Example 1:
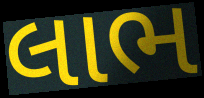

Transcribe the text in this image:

લાભ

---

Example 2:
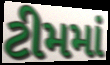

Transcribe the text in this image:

ટીમમાં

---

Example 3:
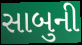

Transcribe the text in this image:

સાબુની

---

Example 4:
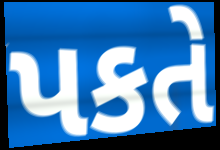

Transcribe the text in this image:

પકતે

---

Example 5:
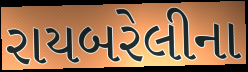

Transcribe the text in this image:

રાયબરેલીના